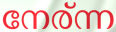
നേര്ന്ന